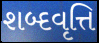
શબ્દવૃત્તિ